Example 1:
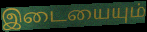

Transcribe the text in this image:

இடையையும்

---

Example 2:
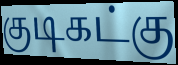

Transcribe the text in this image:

குடிகட்கு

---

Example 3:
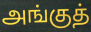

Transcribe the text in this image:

அங்குத்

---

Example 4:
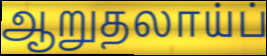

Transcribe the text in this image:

ஆறுதலாய்ப்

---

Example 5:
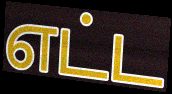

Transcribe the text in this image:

எட்ட